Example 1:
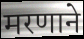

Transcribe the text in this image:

मरणाने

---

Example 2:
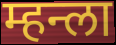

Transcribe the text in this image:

म्हन्ला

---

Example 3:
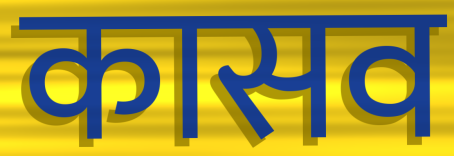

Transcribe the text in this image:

कासव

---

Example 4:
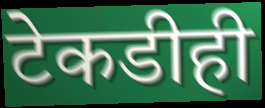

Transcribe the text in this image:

टेकडीही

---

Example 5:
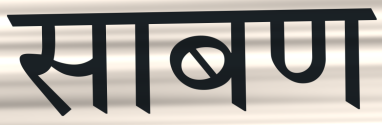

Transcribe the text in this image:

साबण